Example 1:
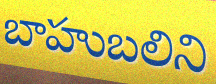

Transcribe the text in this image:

బాహుబలిని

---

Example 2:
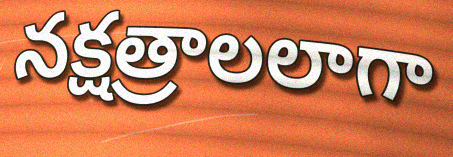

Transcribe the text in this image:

నక్షత్రాలలాగా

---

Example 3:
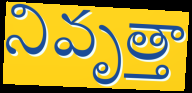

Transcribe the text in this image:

నివృత్తా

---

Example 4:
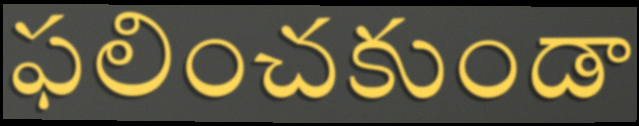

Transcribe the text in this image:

ఫలించకుండా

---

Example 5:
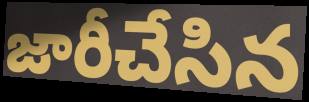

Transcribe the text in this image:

జారీచేసిన